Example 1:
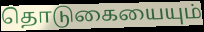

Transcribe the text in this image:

தொடுகையையும்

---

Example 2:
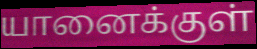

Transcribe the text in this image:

யானைக்குள்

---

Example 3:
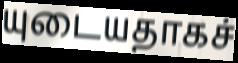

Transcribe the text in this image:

யுடையதாகச்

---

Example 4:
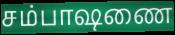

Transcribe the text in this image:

சம்பாஷணை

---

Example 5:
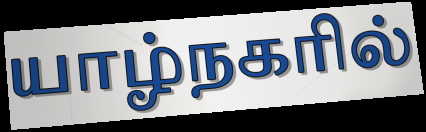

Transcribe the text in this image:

யாழ்நகரில்